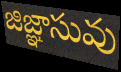
జిజ్ఞాసువు